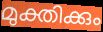
മുക്തിക്കും